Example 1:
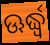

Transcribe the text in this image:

ଊର୍ଦ୍ଧ୍ୱ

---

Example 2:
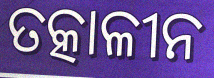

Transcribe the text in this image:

ତତ୍କାଳୀନ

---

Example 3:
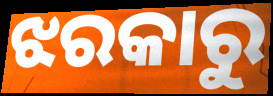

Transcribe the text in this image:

ଝରକାରୁ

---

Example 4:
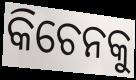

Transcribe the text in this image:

କିଚେନକୁ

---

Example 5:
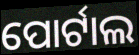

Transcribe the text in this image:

ପୋର୍ଟାଲ